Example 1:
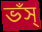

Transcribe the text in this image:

ভঁস্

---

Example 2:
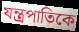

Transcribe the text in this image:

যন্ত্রপাতিকে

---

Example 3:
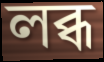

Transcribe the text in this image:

লব্ধ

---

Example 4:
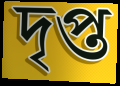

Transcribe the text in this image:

দৃপ্ত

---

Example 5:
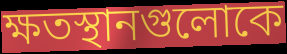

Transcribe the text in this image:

ক্ষতস্থানগুলোকে